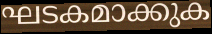
ഘടകമാക്കുക